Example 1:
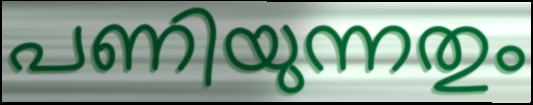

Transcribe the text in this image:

പണിയുന്നതും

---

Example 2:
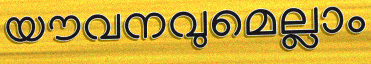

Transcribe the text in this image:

യൗവനവുമെല്ലാം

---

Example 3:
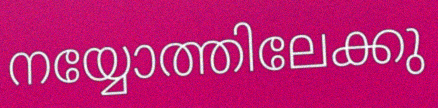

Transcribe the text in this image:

നയ്യോത്തിലേക്കു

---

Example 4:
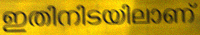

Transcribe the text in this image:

ഇതിനിടയിലാണ്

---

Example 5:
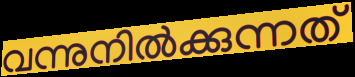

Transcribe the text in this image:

വന്നുനിൽക്കുന്നത്